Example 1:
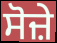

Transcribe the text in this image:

ਸੋਜ਼ੇ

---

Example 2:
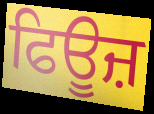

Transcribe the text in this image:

ਫਿਊਜ਼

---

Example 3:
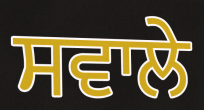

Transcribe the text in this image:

ਸਵਾਲੇ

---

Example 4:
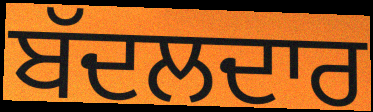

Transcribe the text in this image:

ਬੱਦਲਦਾਰ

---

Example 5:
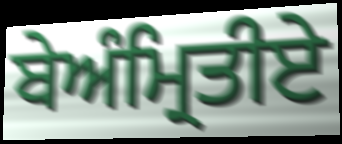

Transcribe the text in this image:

ਬੇਅੰਮ੍ਰਿਤੀਏ